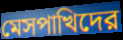
মেসপাখিদের